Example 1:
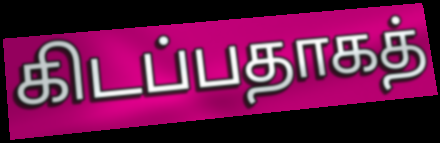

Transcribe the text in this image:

கிடப்பதாகத்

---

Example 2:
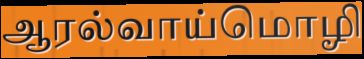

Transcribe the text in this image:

ஆரல்வாய்மொழி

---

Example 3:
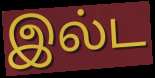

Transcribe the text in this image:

இல்ட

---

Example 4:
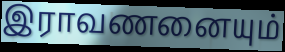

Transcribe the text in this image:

இராவணனையும்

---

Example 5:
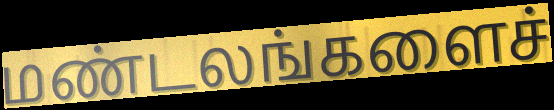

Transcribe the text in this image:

மண்டலங்களைச்